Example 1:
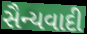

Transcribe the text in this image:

સૈન્યવાદી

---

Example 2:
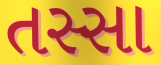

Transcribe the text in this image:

તસ્સા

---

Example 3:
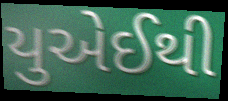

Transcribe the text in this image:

યુએઈથી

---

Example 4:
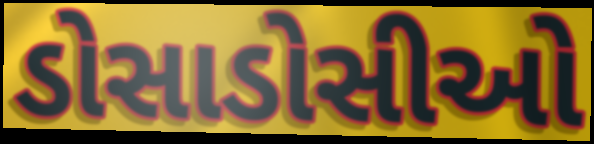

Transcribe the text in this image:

ડોસાડોસીઓ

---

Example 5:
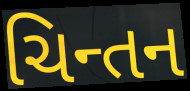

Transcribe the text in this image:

ચિન્તન